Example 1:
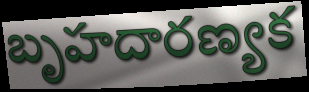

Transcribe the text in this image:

బృహదారణ్యక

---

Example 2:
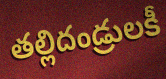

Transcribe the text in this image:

తల్లిదండ్రులకీ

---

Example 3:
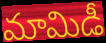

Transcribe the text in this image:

మామిడీ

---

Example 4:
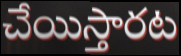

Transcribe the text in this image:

చేయిస్తారట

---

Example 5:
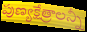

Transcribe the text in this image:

పుణ్యక్షేత్రాలన్నీ